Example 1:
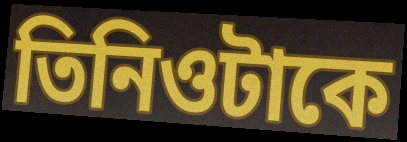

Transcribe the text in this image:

তিনিওটাকে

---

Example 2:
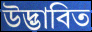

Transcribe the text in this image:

উদ্ভাবিত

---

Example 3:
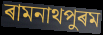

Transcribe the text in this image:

ৰামনাথপুৰম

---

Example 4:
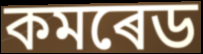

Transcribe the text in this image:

কমৰেড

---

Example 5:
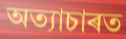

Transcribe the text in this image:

অত্যাচাৰত